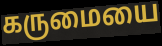
கருமையை